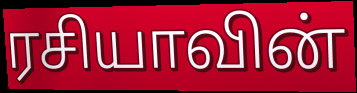
ரசியாவின்